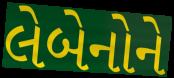
લેબેનોને